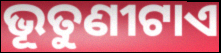
ଭୂତୁଣୀଟାଏ